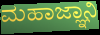
ಮಹಾಜ್ಞಾನಿ